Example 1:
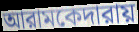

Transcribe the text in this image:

আরামকেদারায়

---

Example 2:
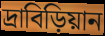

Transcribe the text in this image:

দ্রাবিড়িয়ান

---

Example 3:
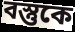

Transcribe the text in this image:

বস্তুকে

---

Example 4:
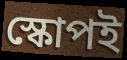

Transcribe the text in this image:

স্কোপই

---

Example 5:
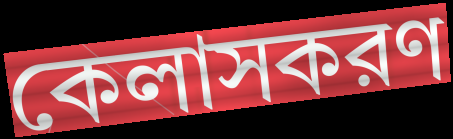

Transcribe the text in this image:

কেলাসকরণ